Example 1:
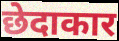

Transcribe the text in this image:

छेदाकार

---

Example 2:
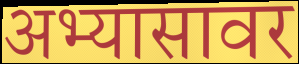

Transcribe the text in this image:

अभ्यासावर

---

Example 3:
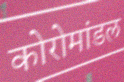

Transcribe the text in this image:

कोरोमांडल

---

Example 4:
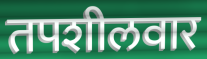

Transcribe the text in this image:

तपशीलवार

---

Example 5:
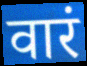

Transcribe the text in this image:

वारं